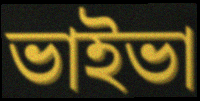
ভাইভা